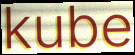
kube